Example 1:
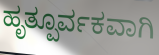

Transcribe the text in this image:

ಹೃತ್ಪೂರ್ವಕವಾಗಿ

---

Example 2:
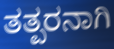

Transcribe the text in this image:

ತತ್ಪರನಾಗಿ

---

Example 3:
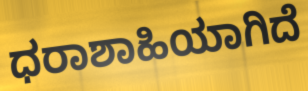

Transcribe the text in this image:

ಧರಾಶಾಹಿಯಾಗಿದೆ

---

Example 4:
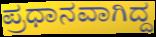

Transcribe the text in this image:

ಪ್ರಧಾನವಾಗಿದ್ದ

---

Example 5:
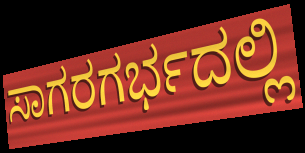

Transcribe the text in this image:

ಸಾಗರಗರ್ಭದಲ್ಲಿ